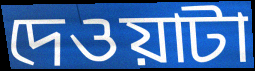
দেওয়াটা